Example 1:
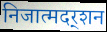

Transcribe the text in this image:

निजात्मदर्शन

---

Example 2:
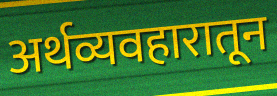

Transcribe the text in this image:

अर्थव्यवहारातून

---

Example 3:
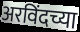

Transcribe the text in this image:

अरविंदच्या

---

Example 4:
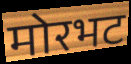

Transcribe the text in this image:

मोरभट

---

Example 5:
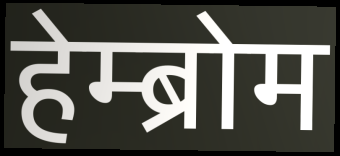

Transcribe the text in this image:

हेम्ब्रोम